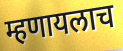
म्हणायलाच